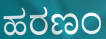
ಹರಣಂ